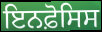
ਇਨਫ਼ੋਸਿਸ